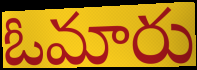
ఓమారు